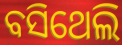
ବସିଥେଲି